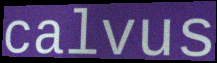
calvus